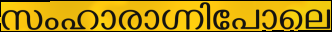
സംഹാരാഗ്നിപോലെ